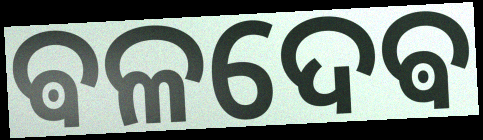
ଵଳଦେଵ